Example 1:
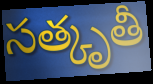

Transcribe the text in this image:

సత్కృతీ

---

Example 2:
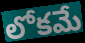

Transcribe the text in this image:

లోకమే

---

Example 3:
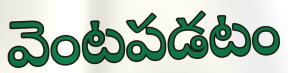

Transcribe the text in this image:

వెంటపడటం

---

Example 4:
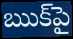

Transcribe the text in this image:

ఋక్‌పై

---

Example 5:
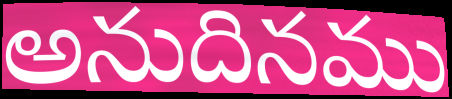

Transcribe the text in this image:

అనుదినము